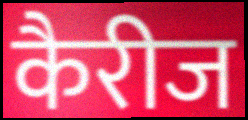
कैरीज